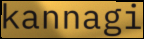
kannagi